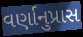
વર્ણાનુપ્રાસ